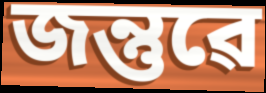
জন্তুৱে